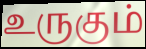
உருகும்